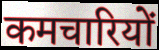
कमचारियों